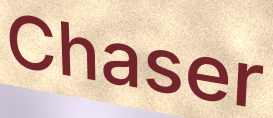
Chaser